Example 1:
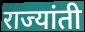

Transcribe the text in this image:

राज्यांती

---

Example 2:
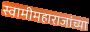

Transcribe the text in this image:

स्वामीमहाराजांच्या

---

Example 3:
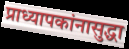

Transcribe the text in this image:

प्राध्यापकांनासुद्धा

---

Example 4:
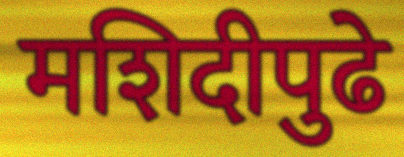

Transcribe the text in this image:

मशिदीपुढे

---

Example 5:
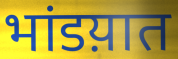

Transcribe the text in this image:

भांडय़ात